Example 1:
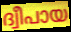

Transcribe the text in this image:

ദ്വീപായ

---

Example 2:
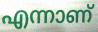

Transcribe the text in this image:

എന്നാണ്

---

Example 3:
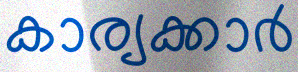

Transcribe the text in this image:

കാര്യക്കാർ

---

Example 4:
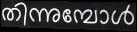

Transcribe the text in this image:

തിന്നുമ്പോൾ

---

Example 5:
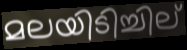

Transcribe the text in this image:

മലയിടിച്ചില്